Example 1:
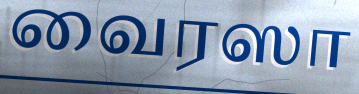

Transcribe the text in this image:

வைரஸா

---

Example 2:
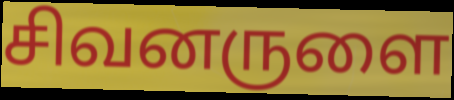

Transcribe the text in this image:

சிவனருளை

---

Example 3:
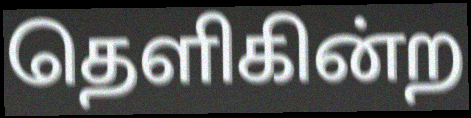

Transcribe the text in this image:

தெளிகின்ற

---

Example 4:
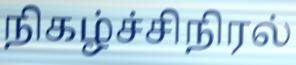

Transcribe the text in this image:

நிகழ்ச்சிநிரல்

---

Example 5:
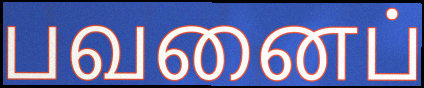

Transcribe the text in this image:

பவனைப்